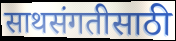
साथसंगतीसाठी